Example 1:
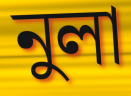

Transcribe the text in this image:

নুলা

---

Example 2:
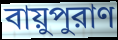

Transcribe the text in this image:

বায়ুপুরাণ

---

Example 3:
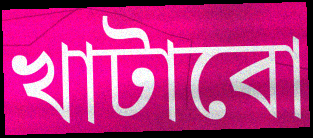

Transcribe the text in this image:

খাটাবো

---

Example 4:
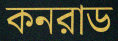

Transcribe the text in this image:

কনরাড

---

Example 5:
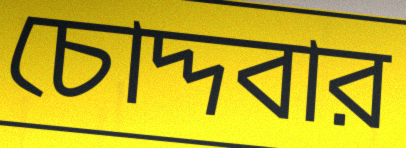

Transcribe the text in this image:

চোদ্দবার